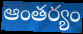
ఆంతర్యం